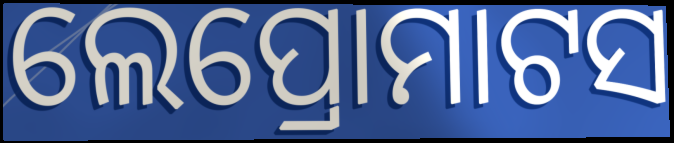
ଲେପ୍ରୋମାଟସ